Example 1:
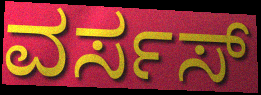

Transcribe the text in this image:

ವರ್ಸಸ್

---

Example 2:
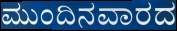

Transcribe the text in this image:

ಮುಂದಿನವಾರದ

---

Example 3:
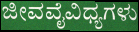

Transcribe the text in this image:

ಜೀವವೈವಿಧ್ಯಗಳು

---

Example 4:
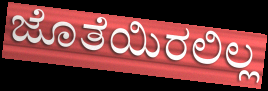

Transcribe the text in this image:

ಜೊತೆಯಿರಲಿಲ್ಲ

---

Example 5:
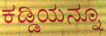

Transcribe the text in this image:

ಕಡ್ಡಿಯನ್ನೂ